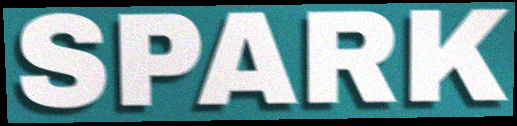
SPARK